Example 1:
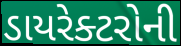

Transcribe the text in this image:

ડાયરેક્ટરોની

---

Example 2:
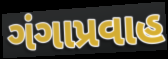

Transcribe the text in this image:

ગંગાપ્રવાહ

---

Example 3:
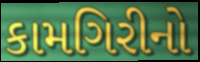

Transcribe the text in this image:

કામગિરીનો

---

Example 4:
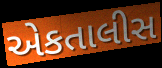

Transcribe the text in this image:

એકતાલીસ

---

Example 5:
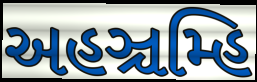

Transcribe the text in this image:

અહઞ્ચમ્હિ